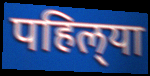
पहिल्या